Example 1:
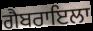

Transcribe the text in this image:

ਗੈਬਰਾਇਲਾ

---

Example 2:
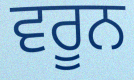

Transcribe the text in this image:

ਵਰੂਨ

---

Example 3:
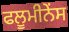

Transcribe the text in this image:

ਫਲੂਮੀਨੇਂਸ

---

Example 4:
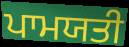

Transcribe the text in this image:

ਪਾਮਯਤੀ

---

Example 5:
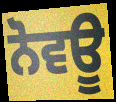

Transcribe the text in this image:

ਨੋਵਊ